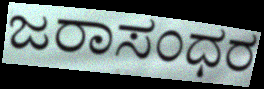
ಜರಾಸಂಧರ